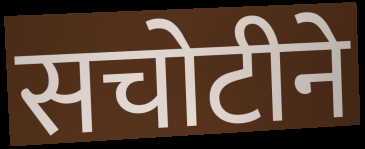
सचोटीने